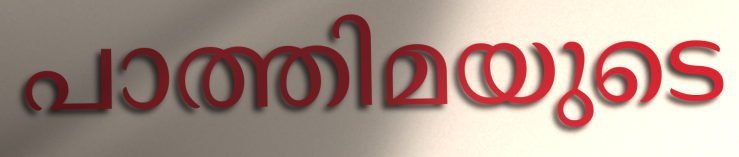
പാത്തിമയുടെ